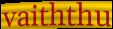
vaiththu